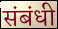
संबंधी